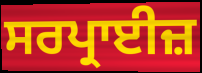
ਸਰਪ੍ਰਾਈਜ਼